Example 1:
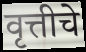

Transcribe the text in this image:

वृत्तीचे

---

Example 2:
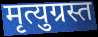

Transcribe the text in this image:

मृत्युग्रस्त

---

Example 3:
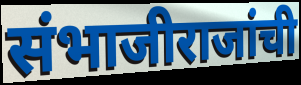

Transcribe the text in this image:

संभाजीराजांची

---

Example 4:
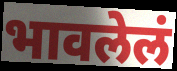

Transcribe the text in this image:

भावलेलं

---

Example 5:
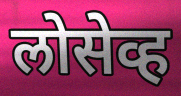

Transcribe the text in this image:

लोसेव्ह